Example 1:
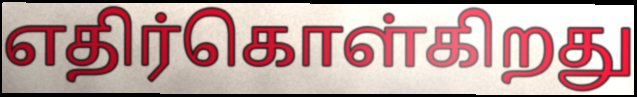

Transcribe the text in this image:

எதிர்கொள்கிறது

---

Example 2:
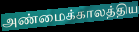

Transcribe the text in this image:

அண்மைக்காலத்திய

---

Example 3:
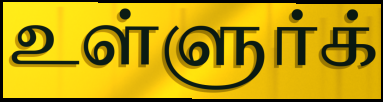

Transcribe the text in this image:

உள்ளுர்க்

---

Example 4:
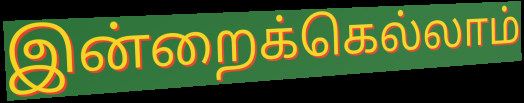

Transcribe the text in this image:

இன்றைக்கெல்லாம்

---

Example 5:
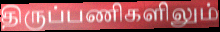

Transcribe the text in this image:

திருப்பணிகளிலும்